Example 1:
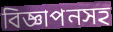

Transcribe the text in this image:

বিজ্ঞাপনসহ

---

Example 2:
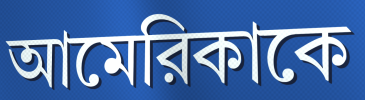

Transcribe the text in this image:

আমেরিকাকে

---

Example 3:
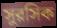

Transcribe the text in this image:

সুরসিক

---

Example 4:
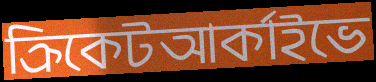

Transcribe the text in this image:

ক্রিকেটআর্কাইভে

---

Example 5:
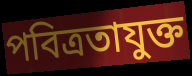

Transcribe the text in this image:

পবিত্রতাযুক্ত